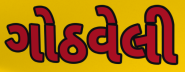
ગોઠવેલી